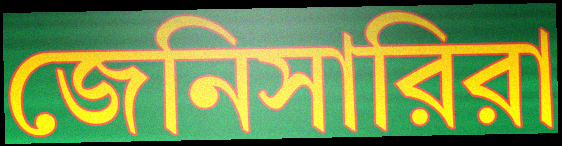
জেনিসারিরা